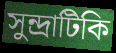
সুন্দ্রাটিকি